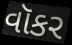
વૉકર